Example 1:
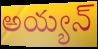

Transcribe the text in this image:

అయ్యన్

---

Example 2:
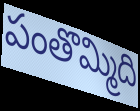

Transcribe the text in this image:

పంతొమ్మిది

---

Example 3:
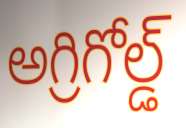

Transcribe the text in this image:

అగ్రిగోల్డ్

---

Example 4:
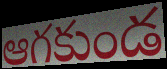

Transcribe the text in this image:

ఆగకుండ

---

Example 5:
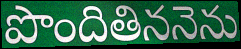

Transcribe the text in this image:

పొందితిననెను